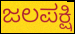
ಜಲಪಕ್ಷಿ